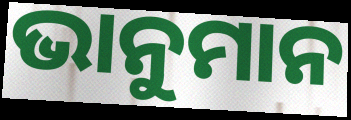
ଭାନୁମାନ